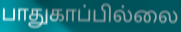
பாதுகாப்பில்லை